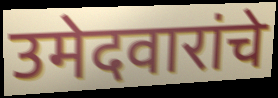
उमेदवारांचे